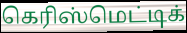
கெரிஸ்மெட்டிக்